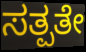
ಸತ್ಪತೇ